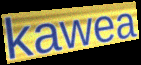
kawea